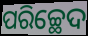
ପରିଚ୍ଛେଦ